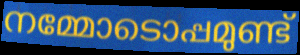
നമ്മോടൊപ്പമുണ്ട്